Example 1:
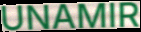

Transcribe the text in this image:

UNAMIR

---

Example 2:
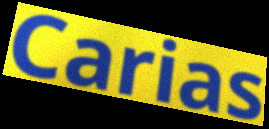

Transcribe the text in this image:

Carias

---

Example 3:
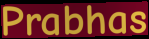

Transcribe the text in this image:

Prabhas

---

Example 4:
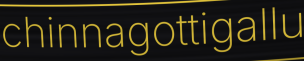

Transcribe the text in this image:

chinnagottigallu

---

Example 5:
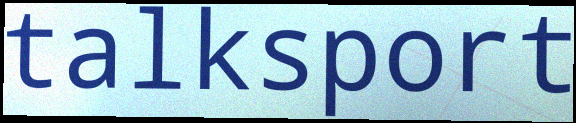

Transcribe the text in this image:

talksport